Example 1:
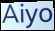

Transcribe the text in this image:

Aiyo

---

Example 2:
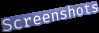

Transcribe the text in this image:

Screenshots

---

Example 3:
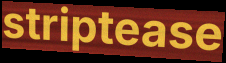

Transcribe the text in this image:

striptease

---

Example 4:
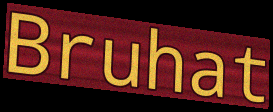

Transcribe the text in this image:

Bruhat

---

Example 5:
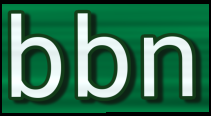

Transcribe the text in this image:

bbn